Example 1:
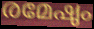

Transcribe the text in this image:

രമേഷും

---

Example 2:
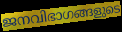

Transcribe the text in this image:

ജനവിഭാഗങ്ങളുടെ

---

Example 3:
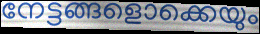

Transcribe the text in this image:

നേട്ടങ്ങളൊക്കെയും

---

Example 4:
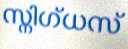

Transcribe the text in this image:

സ്നിഗ്ധസ്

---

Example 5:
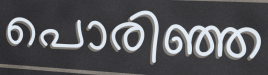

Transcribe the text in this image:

പൊരിഞ്ഞ